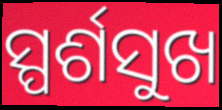
ସ୍ପର୍ଶସୁଖ